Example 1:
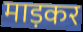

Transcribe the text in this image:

माड़कर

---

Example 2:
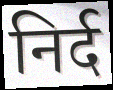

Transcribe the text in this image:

निर्द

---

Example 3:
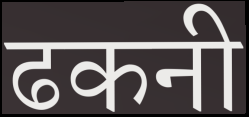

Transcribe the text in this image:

ढकनी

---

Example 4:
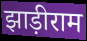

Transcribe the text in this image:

झाड़ीराम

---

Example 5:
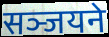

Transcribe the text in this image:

सञ्जयने